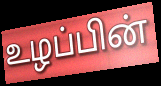
உழப்பின்